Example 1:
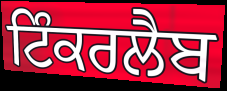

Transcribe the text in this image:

ਟਿੰਕਰਲੈਬ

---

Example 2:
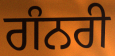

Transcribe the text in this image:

ਗੰਨਰੀ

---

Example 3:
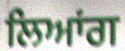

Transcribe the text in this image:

ਲਿਆਂਗ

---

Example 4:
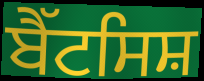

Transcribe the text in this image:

ਬੈੱਟਸਿਸ਼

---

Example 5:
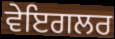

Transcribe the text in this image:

ਵੇਇਗਲਰ